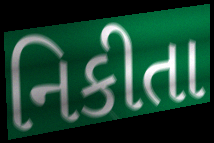
નિકીતા